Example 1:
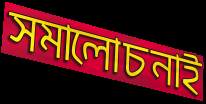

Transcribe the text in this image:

সমালোচনাই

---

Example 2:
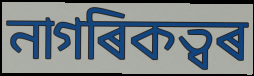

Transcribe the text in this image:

নাগৰিকত্বৰ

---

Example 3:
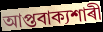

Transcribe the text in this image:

আপ্তবাক্যশাৰী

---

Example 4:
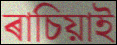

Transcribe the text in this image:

ৰাচিয়াই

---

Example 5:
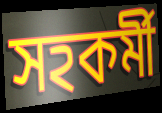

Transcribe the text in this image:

সহকৰ্মী